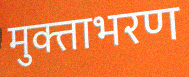
मुक्ताभरण